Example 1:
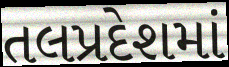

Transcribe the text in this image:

તલપ્રદેશમાં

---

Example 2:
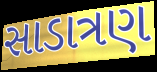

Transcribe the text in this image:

સાડાત્રણ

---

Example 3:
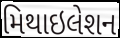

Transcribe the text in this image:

મિથાઇલેશન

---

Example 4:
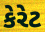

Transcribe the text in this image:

કેરેટ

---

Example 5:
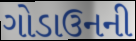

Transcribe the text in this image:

ગોડાઉનની